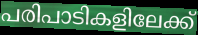
പരിപാടികളിലേക്ക്